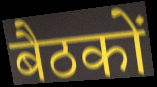
बैठकों